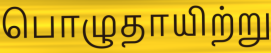
பொழுதாயிற்று